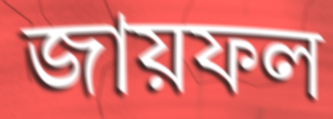
জায়ফল